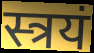
स्त्रयं